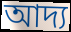
আদ্য